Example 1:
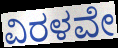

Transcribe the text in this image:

ವಿರಳವೇ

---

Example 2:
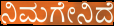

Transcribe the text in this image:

ನಿಮಗೇನಿದೆ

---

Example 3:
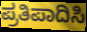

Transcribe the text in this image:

ಪ್ರತಿಪಾದಿಸಿ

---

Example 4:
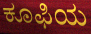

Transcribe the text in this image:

ಕೂಫಿಯ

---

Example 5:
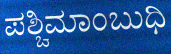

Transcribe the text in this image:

ಪಶ್ಚಿಮಾಂಬುಧಿ